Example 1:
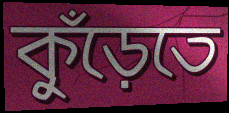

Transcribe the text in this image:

কুঁড়েতে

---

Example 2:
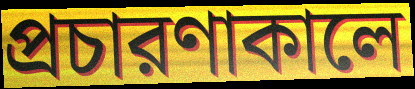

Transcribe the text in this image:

প্রচারণাকালে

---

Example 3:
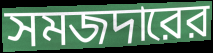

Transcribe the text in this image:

সমজদারের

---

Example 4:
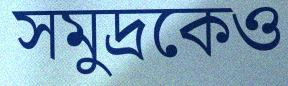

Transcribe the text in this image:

সমুদ্রকেও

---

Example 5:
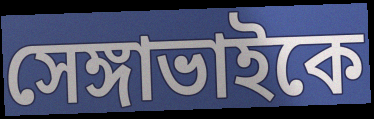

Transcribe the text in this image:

সেঙ্গাভাইকে